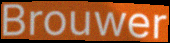
Brouwer